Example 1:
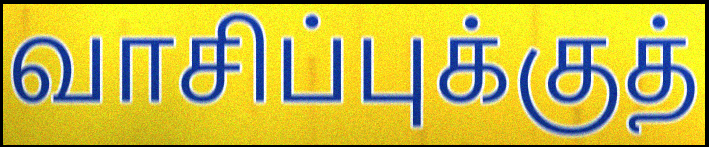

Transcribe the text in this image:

வாசிப்புக்குத்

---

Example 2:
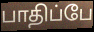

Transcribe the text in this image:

பாதிப்பே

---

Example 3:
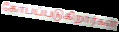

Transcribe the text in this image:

கோபப்படுகிறார்கள்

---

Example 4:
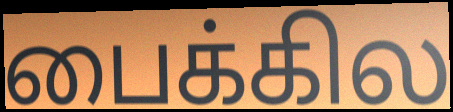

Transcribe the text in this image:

பைக்கில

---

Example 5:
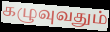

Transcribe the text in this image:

கழுவுவதும்